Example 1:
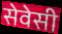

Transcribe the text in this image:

सेवेसी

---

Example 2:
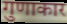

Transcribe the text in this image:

गुणाकार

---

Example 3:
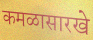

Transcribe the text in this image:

कमळासारखे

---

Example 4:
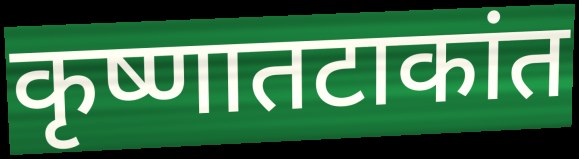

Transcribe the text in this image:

कृष्णातटाकांत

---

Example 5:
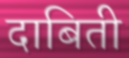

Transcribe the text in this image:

दाबिती